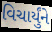
વિચાર્યુંને